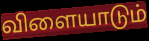
விளையாடும்